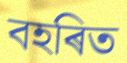
বহৰিত